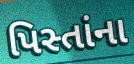
પિસ્તાંના